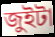
জুইটা